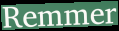
Remmer